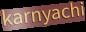
karnyachi